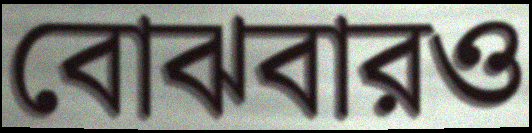
বোঝবারও